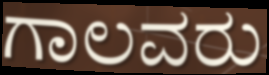
ಗಾಲವರು